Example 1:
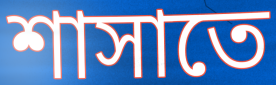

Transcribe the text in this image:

শাসাতে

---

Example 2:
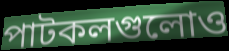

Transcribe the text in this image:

পাটকলগুলোও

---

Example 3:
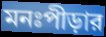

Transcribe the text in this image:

মনঃপীড়ার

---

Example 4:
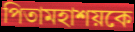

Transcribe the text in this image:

পিতামহাশয়কে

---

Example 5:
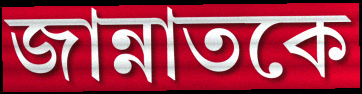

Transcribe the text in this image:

জান্নাতকে